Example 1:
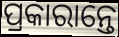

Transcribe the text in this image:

ପ୍ରକାରାନ୍ତେ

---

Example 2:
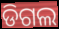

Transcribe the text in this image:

ଡିଗଲ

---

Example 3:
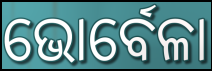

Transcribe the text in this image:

ଭୋର୍ବେଳା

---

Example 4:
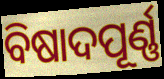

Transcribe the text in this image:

ବିଷାଦପୂର୍ଣ୍ଣ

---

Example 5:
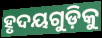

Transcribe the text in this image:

ହୃଦୟଗୁଡ଼ିକୁ